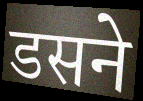
डसने